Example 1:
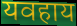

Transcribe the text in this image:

यवहाय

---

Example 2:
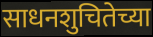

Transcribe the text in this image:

साधनशुचितेच्या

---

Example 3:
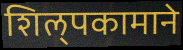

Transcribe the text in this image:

शिल्पकामाने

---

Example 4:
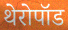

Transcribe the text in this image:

थेरोपॉड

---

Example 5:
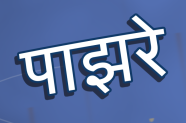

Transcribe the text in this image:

पाझरे